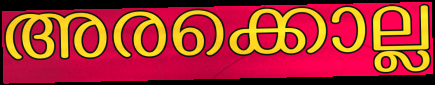
അരക്കൊല്ല